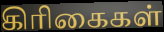
கிரிகைகள்